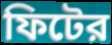
ফিটের